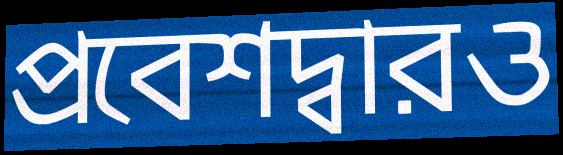
প্রবেশদ্বারও